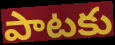
పాటకు